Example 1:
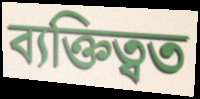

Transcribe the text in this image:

ব্যক্তিত্বত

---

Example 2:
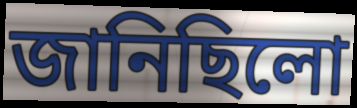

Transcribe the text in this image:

জানিছিলো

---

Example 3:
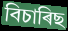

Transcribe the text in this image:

বিচাৰিছ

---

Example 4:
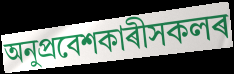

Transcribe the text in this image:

অনুপ্ৰবেশকাৰীসকলৰ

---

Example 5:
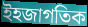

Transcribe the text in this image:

ইহজাগতিক